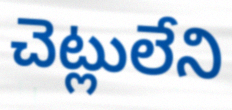
చెట్లులేని